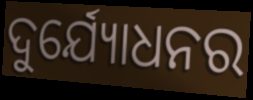
ଦୁର୍ଯ୍ୟୋଧନର